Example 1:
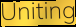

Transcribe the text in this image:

Uniting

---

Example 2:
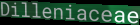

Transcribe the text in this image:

Dilleniaceae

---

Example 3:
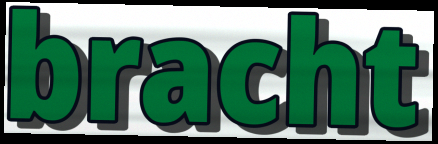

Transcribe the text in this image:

bracht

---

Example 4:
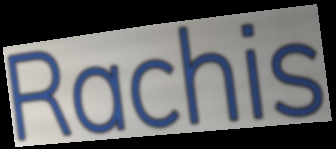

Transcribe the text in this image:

Rachis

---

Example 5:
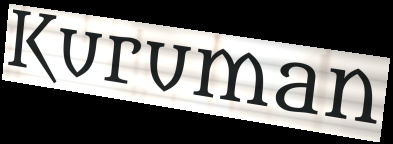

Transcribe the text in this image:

Kuruman